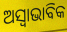
ଅସ୍ଵାଭାବିକ